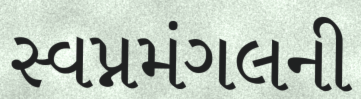
સ્વપ્નમંગલની